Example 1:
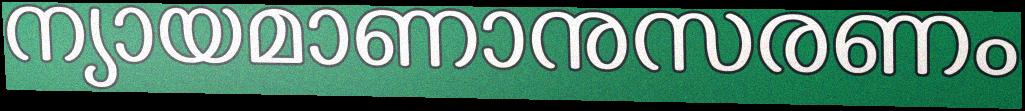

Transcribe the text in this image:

ന്യായമാണാനുസരണം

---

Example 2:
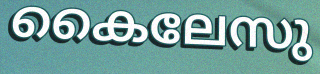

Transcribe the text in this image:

കൈലേസു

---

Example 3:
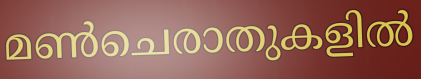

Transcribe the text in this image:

മൺചെരാതുകളിൽ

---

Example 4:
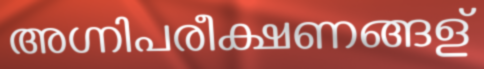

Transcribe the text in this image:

അഗ്നിപരീക്ഷണങ്ങള്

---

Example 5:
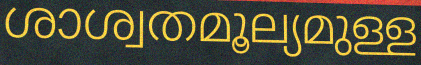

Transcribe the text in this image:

ശാശ്വതമൂല്യമുള്ള